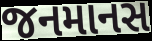
જનમાનસ